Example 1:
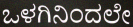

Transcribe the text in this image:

ಒಳಗಿನಿಂದಲೇ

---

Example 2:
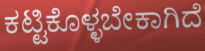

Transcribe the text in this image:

ಕಟ್ಟಿಕೊಳ್ಳಬೇಕಾಗಿದೆ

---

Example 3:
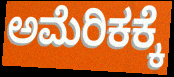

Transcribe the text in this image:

ಅಮೆರಿಕಕ್ಕೆ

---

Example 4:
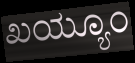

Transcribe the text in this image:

ಖಯ್ಯೂಂ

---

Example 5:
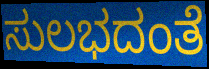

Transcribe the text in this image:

ಸುಲಭದಂತೆ